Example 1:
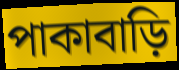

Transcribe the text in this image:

পাকাবাড়ি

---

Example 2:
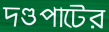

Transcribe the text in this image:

দণ্ডপাটের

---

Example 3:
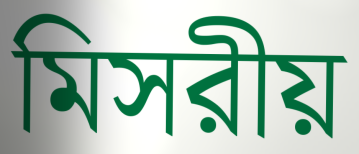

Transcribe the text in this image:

মিসরীয়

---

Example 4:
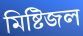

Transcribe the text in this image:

মিষ্টিজল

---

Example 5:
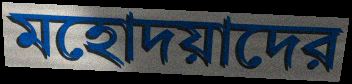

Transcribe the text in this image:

মহোদয়াদের